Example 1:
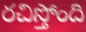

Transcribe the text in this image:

రచిస్తోంది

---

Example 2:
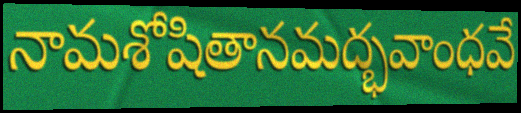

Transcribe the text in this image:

నామశోషితానమద్భవాంధవే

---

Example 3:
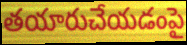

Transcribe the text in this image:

తయారుచేయడంపై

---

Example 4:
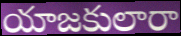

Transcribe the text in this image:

యాజకులారా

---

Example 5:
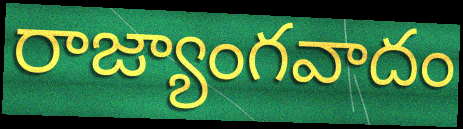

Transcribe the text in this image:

రాజ్యాంగవాదం